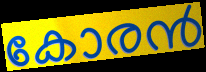
കോരൻ